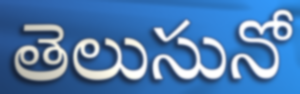
తెలుసునో